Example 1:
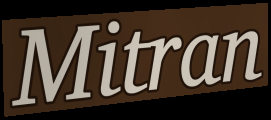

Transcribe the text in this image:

Mitran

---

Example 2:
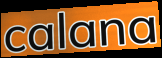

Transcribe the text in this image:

calana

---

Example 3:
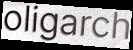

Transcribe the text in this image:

oligarch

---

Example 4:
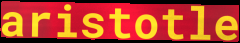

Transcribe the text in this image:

aristotle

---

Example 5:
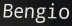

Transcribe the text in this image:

Bengio